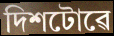
দিশটোৱে